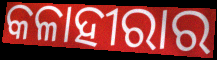
କଳାହୀରାର